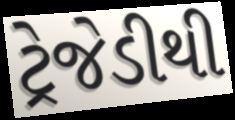
ટ્રેજેડીથી